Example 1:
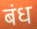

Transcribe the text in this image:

बंध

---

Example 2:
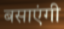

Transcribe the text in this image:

बसाएंगी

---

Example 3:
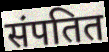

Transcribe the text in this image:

संपतित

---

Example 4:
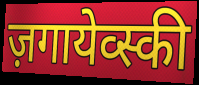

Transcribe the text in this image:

ज़गायेव्स्की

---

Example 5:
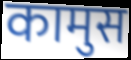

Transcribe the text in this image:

कामुस